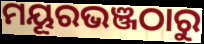
ମୟୂରଭଞ୍ଜଠାରୁ